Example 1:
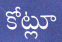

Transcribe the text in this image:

కోట్లూ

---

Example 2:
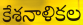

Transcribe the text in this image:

కేశనాళికల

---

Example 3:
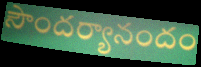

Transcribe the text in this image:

సౌందర్యానందం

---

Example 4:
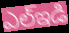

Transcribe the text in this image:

ఎల్ఇడి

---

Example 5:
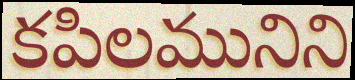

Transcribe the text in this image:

కపిలమునిని